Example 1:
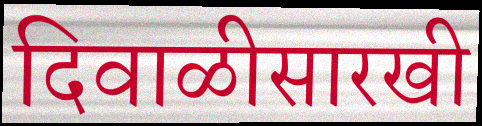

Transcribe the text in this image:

दिवाळीसारखी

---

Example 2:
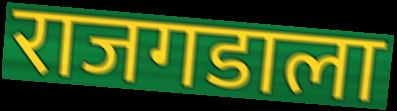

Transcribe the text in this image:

राजगडाला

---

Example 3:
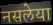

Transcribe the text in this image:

नसलेया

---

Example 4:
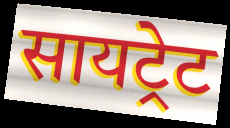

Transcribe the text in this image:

सायट्रेट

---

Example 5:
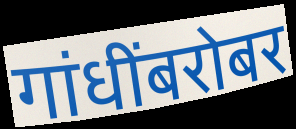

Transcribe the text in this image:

गांधींबरोबर